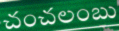
చంచలంబు